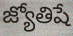
జ్యోతిషే